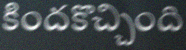
కిందకొచ్చింది